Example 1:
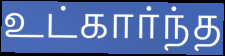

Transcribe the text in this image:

உட்கார்ந்த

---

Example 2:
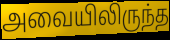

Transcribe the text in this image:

அவையிலிருந்த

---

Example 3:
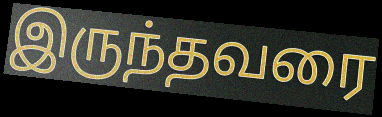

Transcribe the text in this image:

இருந்தவரை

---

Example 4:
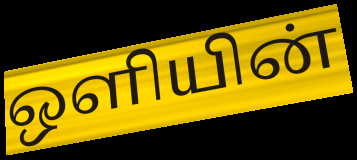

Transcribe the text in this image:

ஒளியின்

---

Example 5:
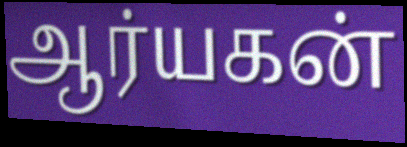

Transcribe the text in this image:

ஆர்யகன்